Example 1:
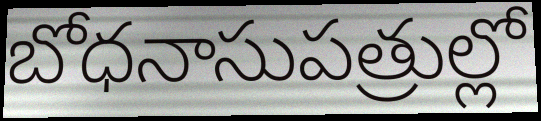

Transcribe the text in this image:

బోధనాసుపత్రుల్లో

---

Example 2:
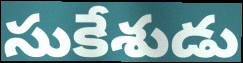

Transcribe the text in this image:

సుకేశుడు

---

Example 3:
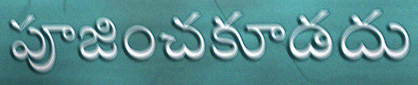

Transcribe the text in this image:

పూజించకూడదు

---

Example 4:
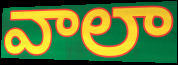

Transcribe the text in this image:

వాలా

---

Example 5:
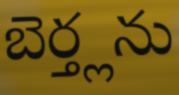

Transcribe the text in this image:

బెర్త్లను